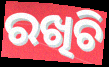
ରଖିଚି